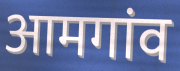
आमगांव